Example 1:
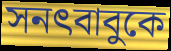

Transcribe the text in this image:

সনৎবাবুকে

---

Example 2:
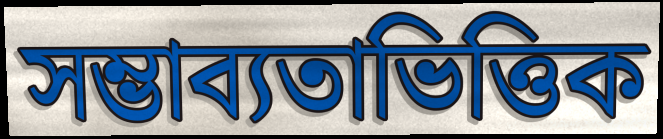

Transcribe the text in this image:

সম্ভাব্যতাভিত্তিক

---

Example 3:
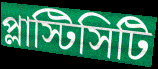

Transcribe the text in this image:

প্লাস্টিসিটি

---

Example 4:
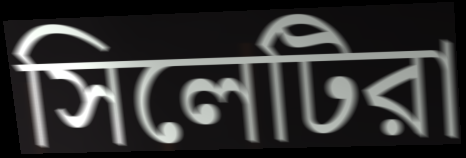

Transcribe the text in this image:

সিলেটিরা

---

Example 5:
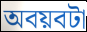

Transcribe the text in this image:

অবয়বটা